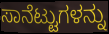
ಸಾನೆಟ್ಟುಗಳನ್ನು